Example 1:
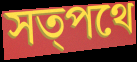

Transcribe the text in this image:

সত্পথে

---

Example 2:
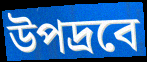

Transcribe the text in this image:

উপদ্রবে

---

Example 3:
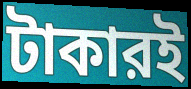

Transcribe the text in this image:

টাকারই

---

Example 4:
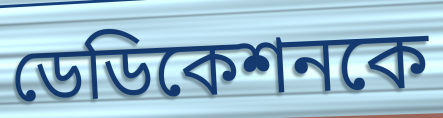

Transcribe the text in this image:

ডেডিকেশনকে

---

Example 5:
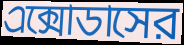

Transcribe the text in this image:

এক্সোডাসের